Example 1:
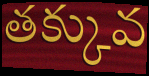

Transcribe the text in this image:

తక్కువ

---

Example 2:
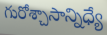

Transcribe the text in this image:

గురోశ్చాసాన్నిధ్యే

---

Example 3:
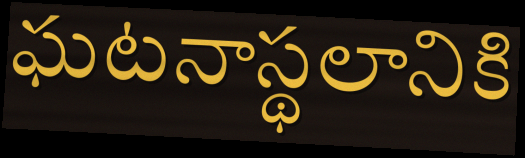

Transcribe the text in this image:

ఘటనాస్థలానికి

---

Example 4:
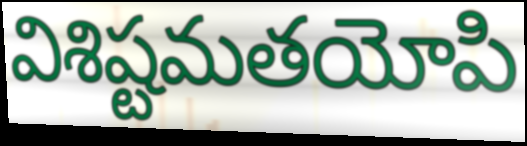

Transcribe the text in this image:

విశిష్టమతయోపి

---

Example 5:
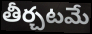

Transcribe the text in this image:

తీర్చటమే